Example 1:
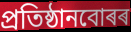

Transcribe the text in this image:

প্ৰতিষ্ঠানবোৰৰ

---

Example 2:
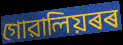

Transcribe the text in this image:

গোৱালিয়ৰৰ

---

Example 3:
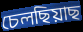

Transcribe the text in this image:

চেলছিয়াছ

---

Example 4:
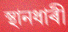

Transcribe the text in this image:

স্থানধাৰী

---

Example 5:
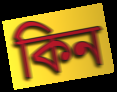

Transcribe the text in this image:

কিন